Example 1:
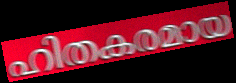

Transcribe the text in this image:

ഹിതകരമായ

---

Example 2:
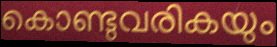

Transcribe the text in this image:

കൊണ്ടുവരികയും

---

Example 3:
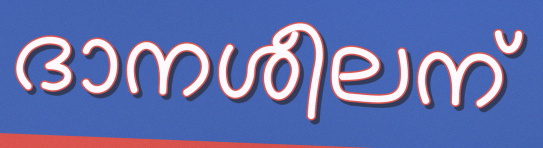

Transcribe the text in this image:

ദാനശീലന്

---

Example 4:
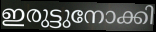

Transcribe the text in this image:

ഇരുട്ടുനോക്കി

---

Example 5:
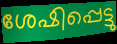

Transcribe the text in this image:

ശേഷിപ്പെട്ടു